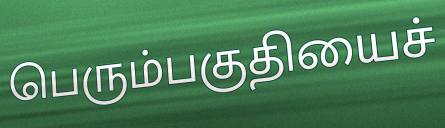
பெரும்பகுதியைச்